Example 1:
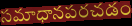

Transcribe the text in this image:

సమాధానపరచడం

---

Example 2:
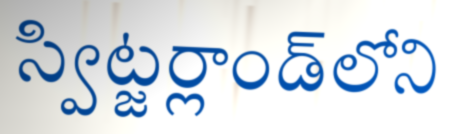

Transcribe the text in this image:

స్విట్జర్లాండ్‌లోని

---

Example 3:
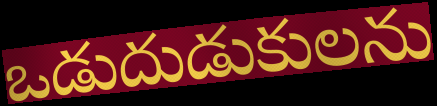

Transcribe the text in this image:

ఒడుదుడుకులను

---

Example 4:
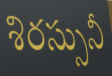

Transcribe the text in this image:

శిరస్సునీ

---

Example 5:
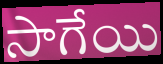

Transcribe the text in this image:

సాగేయి